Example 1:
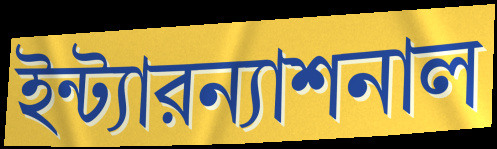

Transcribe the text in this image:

ইন্ট্যারন্যাশনাল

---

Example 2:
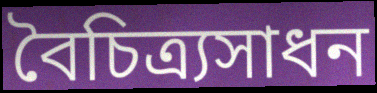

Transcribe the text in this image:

বৈচিত্র্যসাধন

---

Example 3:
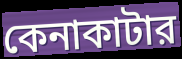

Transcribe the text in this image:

কেনাকাটার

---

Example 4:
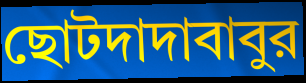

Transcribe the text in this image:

ছোটদাদাবাবুর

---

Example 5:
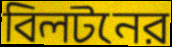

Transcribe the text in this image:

বিলটনের